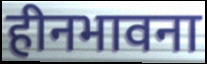
हीनभावना